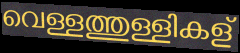
വെള്ളത്തുള്ളികള്